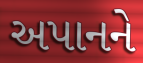
અપાનને